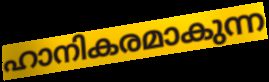
ഹാനികരമാകുന്ന